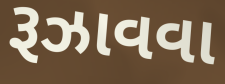
રૂઝાવવા